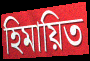
হিমায়িত